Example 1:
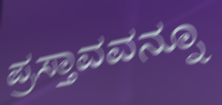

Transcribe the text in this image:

ಪ್ರಸ್ತಾವವನ್ನೂ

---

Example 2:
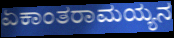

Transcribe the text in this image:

ಏಕಾಂತರಾಮಯ್ಯನ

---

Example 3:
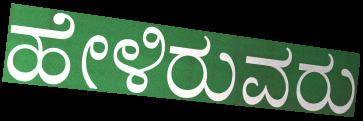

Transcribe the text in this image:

ಹೇಳಿರುವರು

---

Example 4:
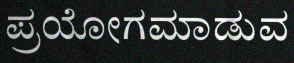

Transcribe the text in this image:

ಪ್ರಯೋಗಮಾಡುವ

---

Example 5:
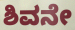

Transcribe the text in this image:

ಶಿವನೇ